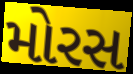
મોરસ